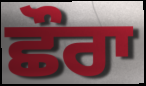
ਛੌਰਾ